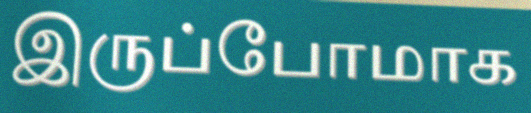
இருப்போமாக